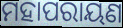
ମହାପରାୟଣ